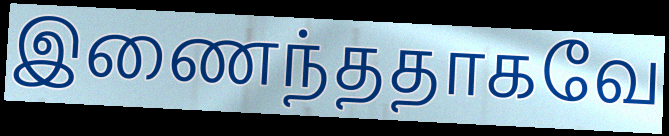
இணைந்ததாகவே